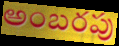
అంబరపు